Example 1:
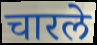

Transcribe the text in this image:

चारले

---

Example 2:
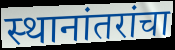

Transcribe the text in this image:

स्थानांतरांचा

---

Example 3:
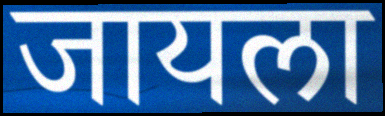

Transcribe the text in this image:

जायला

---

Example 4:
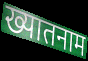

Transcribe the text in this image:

ख्यातनाम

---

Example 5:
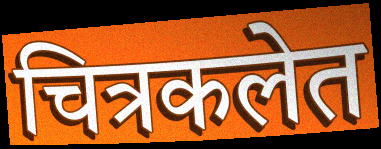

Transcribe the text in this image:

चित्रकलेत